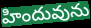
హిందువును